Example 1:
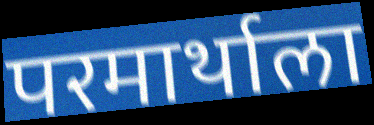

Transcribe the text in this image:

परमार्थाला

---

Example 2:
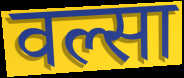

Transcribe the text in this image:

वल्सा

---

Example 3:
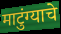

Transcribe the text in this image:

माटुंग्याचे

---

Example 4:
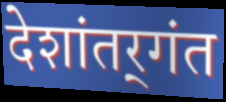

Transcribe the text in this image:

देशांतर्गंत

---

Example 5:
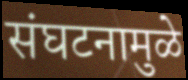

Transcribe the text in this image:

संघटनामुळे